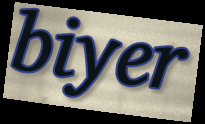
biyer